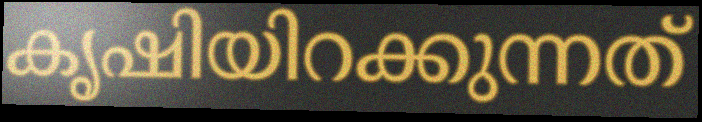
കൃഷിയിറക്കുന്നത്